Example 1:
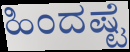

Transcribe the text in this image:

ಹಿಂದಷ್ಟೆ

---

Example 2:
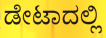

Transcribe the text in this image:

ಡೇಟಾದಲ್ಲಿ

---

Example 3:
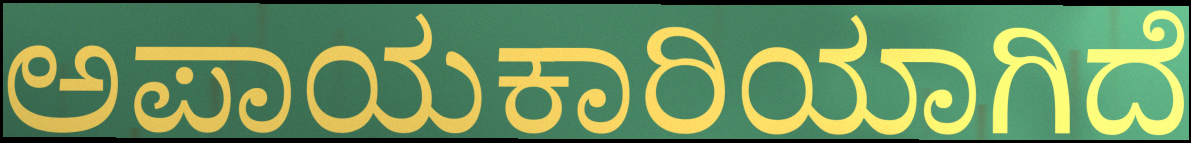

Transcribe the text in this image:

ಅಪಾಯಕಾರಿಯಾಗಿದೆ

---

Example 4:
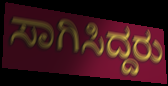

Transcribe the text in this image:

ಸಾಗಿಸಿದ್ದರು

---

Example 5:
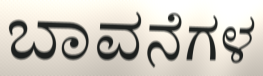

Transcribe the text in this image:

ಬಾವನೆಗಳ